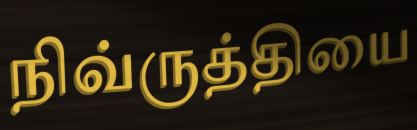
நிவ்ருத்தியை